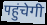
पहुंचेगी